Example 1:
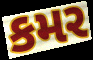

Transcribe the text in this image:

કમર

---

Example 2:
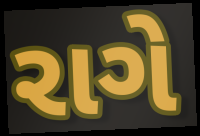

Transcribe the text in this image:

રાગે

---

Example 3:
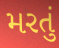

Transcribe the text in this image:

મરતું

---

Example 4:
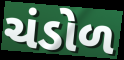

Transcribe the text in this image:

ચંડોળ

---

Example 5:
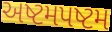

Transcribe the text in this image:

અષ્ટમપષ્ટમ